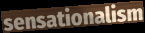
sensationalism